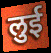
लुई